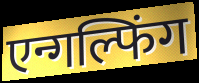
एन्गल्फिंग